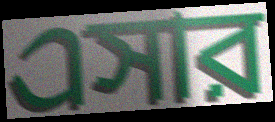
এসার